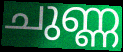
ചുണ്ണ